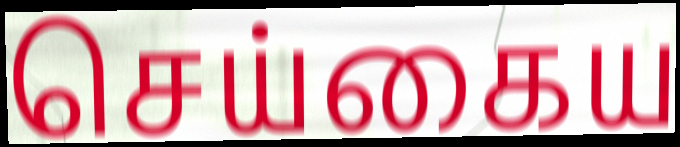
செய்கைய